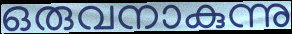
ഒരുവനാകുന്നു